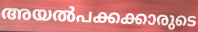
അയൽപക്കക്കാരുടെ